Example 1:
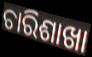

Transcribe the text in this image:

ଚାରିଶାଖା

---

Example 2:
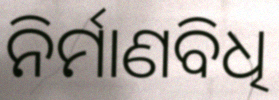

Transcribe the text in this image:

ନିର୍ମାଣବିଧି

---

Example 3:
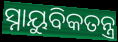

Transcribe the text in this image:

ସ୍ନାୟୁବିକତନ୍ତ୍ର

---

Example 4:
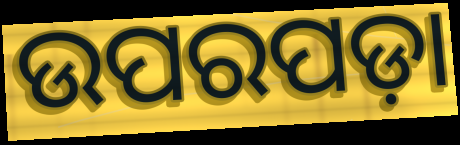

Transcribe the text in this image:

ଉପରପଡ଼ା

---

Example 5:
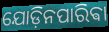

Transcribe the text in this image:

ଯୋଡ଼ିନପାରିଵା